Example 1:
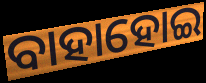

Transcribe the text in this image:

ବାହାହୋଇ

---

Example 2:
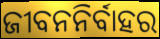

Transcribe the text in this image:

ଜୀବନନିର୍ବାହର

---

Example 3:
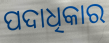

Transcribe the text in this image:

ପଦାଧିକାର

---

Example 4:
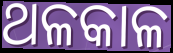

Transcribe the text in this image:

ଥଳକାଳ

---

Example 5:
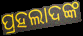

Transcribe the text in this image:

ପ୍ରହଲାଦଙ୍କ